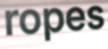
ropes